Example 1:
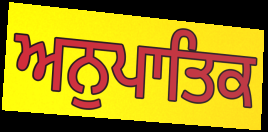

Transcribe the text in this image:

ਅਨੁਪਾਤਿਕ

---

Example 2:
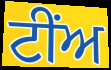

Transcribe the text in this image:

ਟੀਂਅ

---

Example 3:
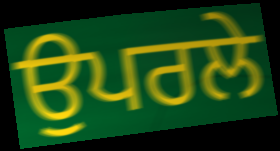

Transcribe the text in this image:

ਉਪਰਲੇ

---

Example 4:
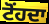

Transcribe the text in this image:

ਟੋਂਹਦਾ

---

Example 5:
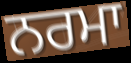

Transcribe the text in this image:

ਨਰਮਾ